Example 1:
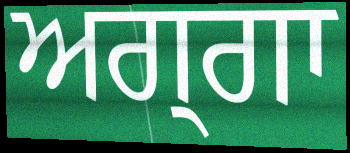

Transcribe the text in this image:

ਅਗ੍ਗਾ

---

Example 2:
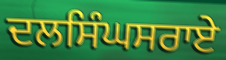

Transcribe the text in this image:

ਦਲਸਿੰਘਸਰਾਏ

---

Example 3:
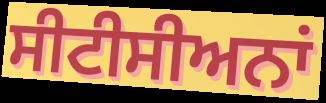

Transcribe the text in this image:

ਸੀਟੀਸੀਅਨਾਂ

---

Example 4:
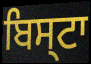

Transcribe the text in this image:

ਬਿਸ੍ਟਾ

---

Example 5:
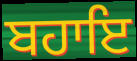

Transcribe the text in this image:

ਬਹਾਇ